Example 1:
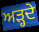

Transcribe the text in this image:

ਅੜ੍ਹਦੇ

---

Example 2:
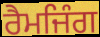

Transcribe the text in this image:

ਰੈਮਜਿੰਗ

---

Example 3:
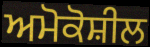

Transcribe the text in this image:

ਅਮੋਕੋਸ਼ੀਲ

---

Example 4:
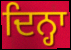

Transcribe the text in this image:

ਦਿਨ੍ਹਾ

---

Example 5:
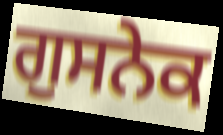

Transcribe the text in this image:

ਗੁਸਨੇਕ